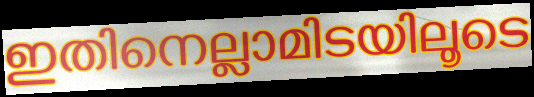
ഇതിനെല്ലാമിടയിലൂടെ